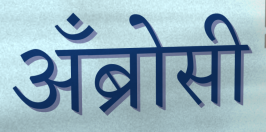
अँब्रोसी